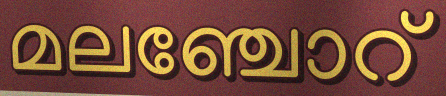
മലഞ്ചോറ്